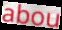
abou